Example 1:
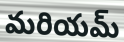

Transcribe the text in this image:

మరియమ్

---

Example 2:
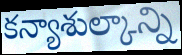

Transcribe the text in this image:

కన్యాశుల్కాన్ని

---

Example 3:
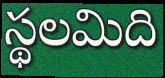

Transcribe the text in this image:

స్థలమిది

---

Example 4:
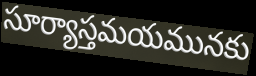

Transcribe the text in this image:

సూర్యాస్తమయమునకు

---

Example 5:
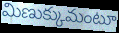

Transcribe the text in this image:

మిణుక్కుమంటూ